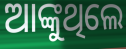
ଆଙ୍କୁଥିଲେ